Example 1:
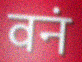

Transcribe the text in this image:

वनं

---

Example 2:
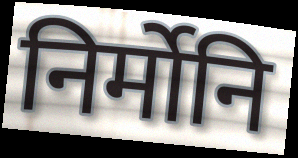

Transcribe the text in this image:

निर्मोनि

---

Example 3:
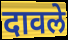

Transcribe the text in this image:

दावले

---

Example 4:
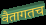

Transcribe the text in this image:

वैतागतच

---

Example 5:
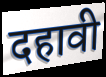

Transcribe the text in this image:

दहावी